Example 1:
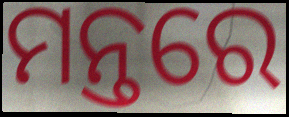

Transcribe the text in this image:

ମନ୍ତରେ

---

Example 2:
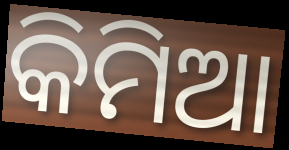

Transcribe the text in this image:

କିମିଆ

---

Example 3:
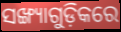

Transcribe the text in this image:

ସଙ୍ଖ୍ୟାଗୁଡ଼ିକରେ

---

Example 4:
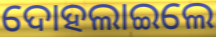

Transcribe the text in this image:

ଦୋହଲାଇଲେ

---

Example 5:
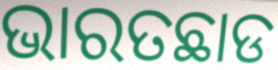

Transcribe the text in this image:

ଭାରତଛାଡ